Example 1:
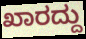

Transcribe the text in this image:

ಖಾರದ್ದು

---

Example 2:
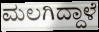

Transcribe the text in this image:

ಮಲಗಿದ್ದಾಳೆ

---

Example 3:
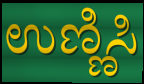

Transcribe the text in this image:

ಉಣ್ಣಿಸಿ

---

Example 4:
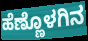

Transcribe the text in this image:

ಹೆಣ್ಣೊಳಗಿನ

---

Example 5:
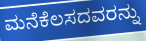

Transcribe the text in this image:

ಮನೆಕೆಲಸದವರನ್ನು